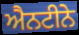
ਐਨਟੀਨੇ